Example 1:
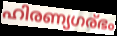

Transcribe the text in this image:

ഹിരണ്യഗര്ഭം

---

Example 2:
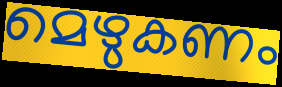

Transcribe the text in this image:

മെഴുകണം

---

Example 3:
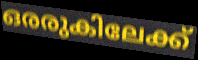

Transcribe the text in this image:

ഒരരുകിലേക്ക്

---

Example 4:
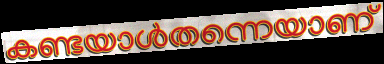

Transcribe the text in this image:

കണ്ടയാൾതന്നെയാണ്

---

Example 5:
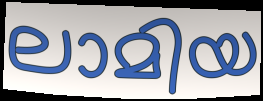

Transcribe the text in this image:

ലാമിയ